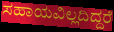
ಸಹಾಯವಿಲ್ಲದಿದ್ದರೆ